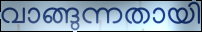
വാങ്ങുന്നതായി